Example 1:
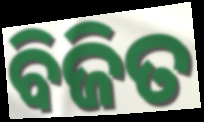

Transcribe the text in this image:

ବିଜିତ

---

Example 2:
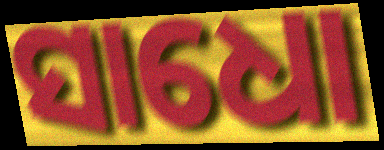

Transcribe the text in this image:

ସାଧୋ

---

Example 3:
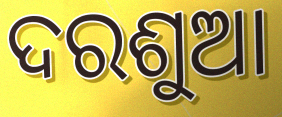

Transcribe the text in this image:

ଦରଶୁଆ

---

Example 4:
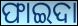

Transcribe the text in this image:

ଫାଇଦା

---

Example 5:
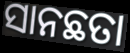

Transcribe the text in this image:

ସାନଛତା